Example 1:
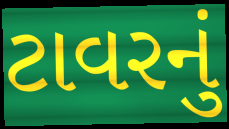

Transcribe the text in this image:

ટાવરનું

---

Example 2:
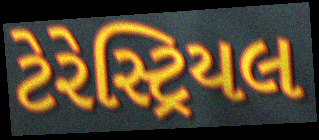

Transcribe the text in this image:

ટેરેસ્ટ્રિયલ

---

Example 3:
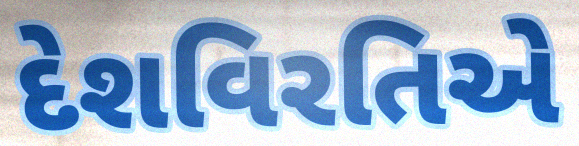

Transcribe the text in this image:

દેશવિરતિએ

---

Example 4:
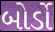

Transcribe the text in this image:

બોર્ડો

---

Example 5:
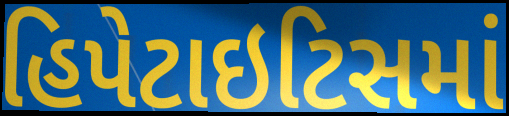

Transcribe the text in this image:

હિપેટાઇટિસમાં